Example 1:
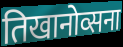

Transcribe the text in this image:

तिखानोव्सना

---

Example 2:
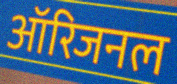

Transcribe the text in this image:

ऑरिजनल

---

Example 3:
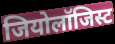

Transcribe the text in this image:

जियोलॉजिस्ट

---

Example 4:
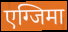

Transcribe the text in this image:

एग्जिमा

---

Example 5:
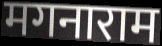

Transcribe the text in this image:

मगनाराम